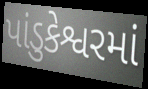
પાંડુકેશ્વરમાં